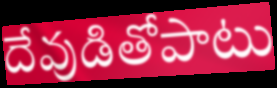
దేవుడితోపాటు